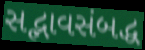
સદ્ભાવસંબદ્ધ